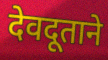
देवदूताने